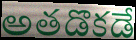
అతడొకడే